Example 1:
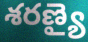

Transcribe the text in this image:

శరణ్యై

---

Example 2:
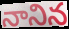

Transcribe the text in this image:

నానిన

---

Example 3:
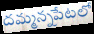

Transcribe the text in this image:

దమ్మన్నపేటలో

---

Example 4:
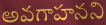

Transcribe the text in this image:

అవగాహనని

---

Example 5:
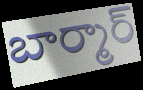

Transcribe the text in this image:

బార్మార్